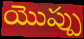
యొప్పు